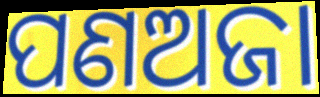
ପଣଅଜା